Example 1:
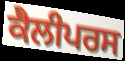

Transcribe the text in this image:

ਕੈਲੀਪਰਸ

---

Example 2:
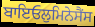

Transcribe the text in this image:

ਬਾਇਓਲੁਮਿਨੇਸੈਂਸ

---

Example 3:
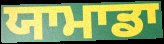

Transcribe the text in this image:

ਯਾਮਾਡਾ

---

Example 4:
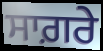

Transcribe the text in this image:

ਸਾਗ਼ਰੇ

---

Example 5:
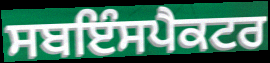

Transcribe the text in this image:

ਸਬਇੰਸਪੈਕਟਰ